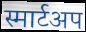
स्मार्टअप